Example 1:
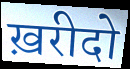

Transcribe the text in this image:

ख़रीदो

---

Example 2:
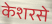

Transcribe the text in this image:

केशरसे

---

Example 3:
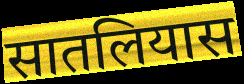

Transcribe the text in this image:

सातलियास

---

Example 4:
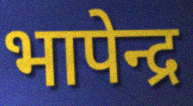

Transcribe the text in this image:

भापेन्द्र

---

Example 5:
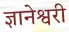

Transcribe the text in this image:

ज्ञानेश्वरी